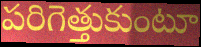
పరిగెత్తుకుంటూ